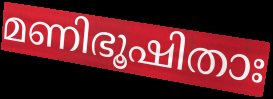
മണിഭൂഷിതാഃ